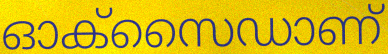
ഓക്സൈഡാണ്